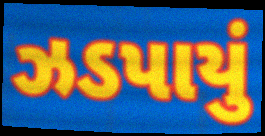
ઝડપાયું